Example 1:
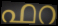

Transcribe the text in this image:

ഫറ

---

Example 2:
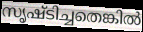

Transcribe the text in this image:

സൃഷ്ടിച്ചതെങ്കിൽ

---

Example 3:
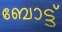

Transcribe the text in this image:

ബോട്ട്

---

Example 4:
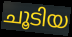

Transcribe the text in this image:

ചൂടിയ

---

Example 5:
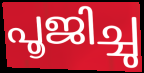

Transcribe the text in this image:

പൂജിച്ചു